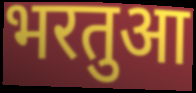
भरतुआ